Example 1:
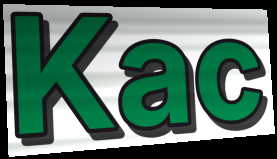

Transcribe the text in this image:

Kac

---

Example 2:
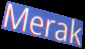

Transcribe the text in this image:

Merak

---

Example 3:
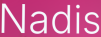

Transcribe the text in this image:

Nadis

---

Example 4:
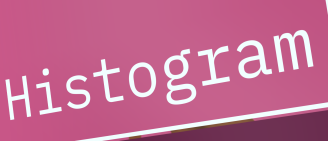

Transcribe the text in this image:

Histogram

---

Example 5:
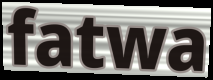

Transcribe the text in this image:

fatwa